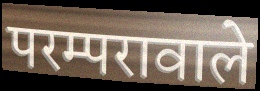
परम्परावाले